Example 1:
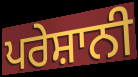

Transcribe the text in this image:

ਪਰੇਸ਼ਾਨੀ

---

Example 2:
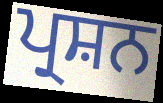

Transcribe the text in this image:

ਪ੍ਰਸ਼ਨ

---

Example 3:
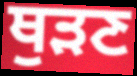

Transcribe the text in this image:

ਥੁੜਣ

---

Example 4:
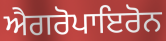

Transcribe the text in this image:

ਐਗਰੋਪਾਇਰੋਨ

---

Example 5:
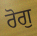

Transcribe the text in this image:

ਰੋਗੁ